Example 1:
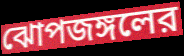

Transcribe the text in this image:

ঝোপজঙ্গলের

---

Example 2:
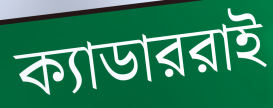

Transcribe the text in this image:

ক্যাডাররাই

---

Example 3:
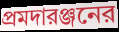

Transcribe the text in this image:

প্রমদারঞ্জনের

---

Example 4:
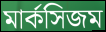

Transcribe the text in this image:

মার্কসিজম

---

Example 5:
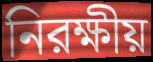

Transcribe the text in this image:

নিরক্ষীয়